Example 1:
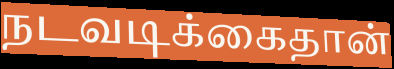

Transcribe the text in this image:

நடவடிக்கைதான்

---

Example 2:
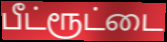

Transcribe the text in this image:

பீட்ரூட்டை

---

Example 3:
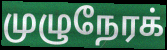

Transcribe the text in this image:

முழுநேரக்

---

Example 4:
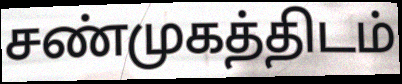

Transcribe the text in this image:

சண்முகத்திடம்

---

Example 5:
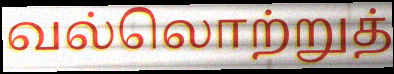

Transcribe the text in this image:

வல்லொற்றுத்